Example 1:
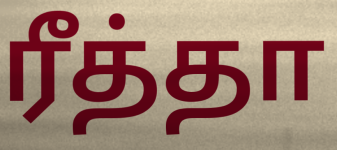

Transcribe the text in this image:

ரீத்தா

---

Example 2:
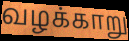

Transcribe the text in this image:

வழக்காறு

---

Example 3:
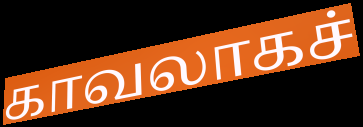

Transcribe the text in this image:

காவலாகச்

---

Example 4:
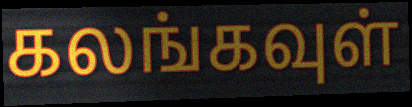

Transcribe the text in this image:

கலங்கவுள்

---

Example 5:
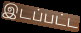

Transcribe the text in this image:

இடப்பட்ட